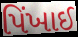
પિંખાઈ